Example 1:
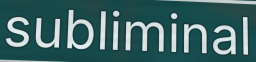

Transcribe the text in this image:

subliminal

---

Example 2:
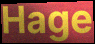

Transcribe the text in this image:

Hage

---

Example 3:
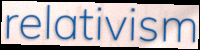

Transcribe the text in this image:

relativism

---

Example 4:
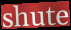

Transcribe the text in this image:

shute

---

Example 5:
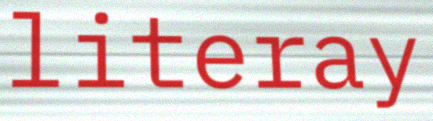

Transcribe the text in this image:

literay